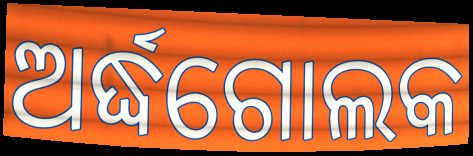
ଅର୍ଦ୍ଧଗୋଲକ